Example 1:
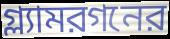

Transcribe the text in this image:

গ্ল্যামরগনের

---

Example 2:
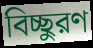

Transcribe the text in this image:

বিচ্ছুরণ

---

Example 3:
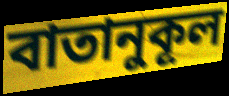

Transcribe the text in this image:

বাতানুকূল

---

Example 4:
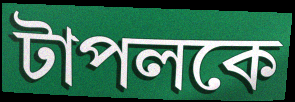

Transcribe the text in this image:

টাপলকে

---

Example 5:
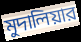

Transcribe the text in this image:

মুদালিয়ার